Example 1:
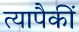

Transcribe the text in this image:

त्यापैकीं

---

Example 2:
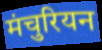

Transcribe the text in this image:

मंचुरियन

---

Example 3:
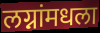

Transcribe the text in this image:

लग्नांमधला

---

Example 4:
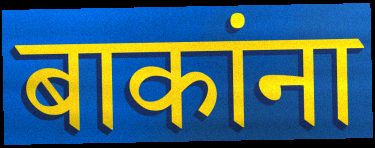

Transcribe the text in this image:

बाकांना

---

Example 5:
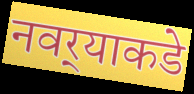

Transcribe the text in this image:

नवर्याकडे